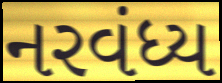
નરવંધ્ય